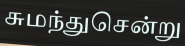
சுமந்துசென்று